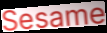
Sesame